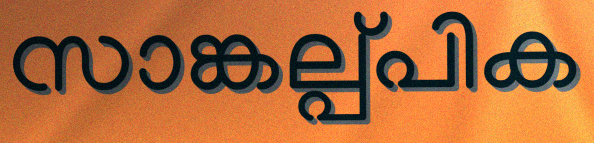
സാങ്കല്പ്പിക